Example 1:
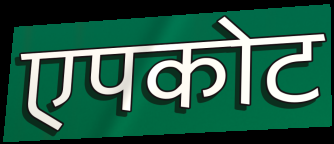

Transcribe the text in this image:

एपकोट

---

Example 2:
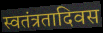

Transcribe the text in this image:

स्वतंत्रतादिवस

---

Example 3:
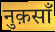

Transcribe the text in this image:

नुक़साँ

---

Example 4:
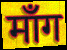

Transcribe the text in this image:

माँग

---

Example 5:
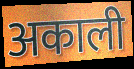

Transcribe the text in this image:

अकाली